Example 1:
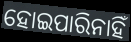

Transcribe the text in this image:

ହୋଇପାରିନାହିଁ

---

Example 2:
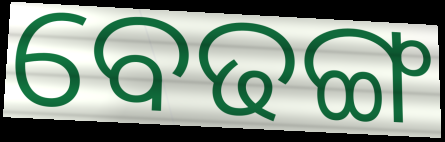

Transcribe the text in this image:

ବେଢଙ୍ଗ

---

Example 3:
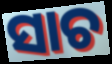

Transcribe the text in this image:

ସାଚ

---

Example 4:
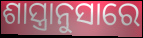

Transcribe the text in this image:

ଶାସ୍ତ୍ରାନୁସାରେ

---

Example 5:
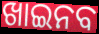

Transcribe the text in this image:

ଖାଇନବ